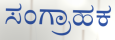
ಸಂಗ್ರಾಹಕ